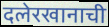
दलेरखानाची